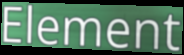
Element